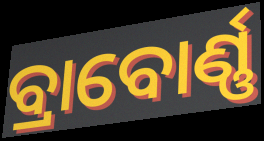
ବ୍ରାବୋର୍ଣ୍ଣ